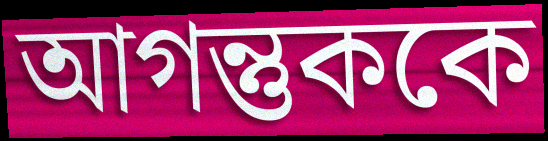
আগন্তুককে